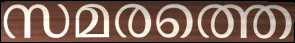
സമരത്തെ